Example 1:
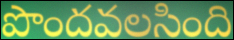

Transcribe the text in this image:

పొందవలసింది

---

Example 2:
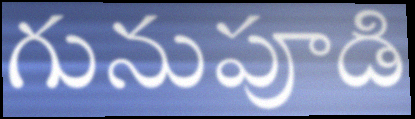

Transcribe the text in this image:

గునుపూడి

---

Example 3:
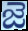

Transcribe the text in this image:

జె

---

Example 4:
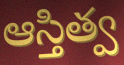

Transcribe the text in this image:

ఆస్తిత్వ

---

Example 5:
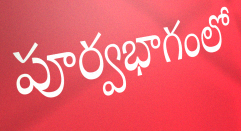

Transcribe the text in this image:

పూర్వభాగంలో